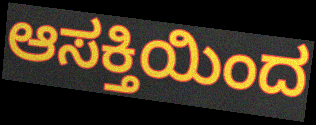
ಆಸಕ್ತಿಯಿಂದ